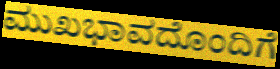
ಮುಖಭಾವದೊಂದಿಗೆ